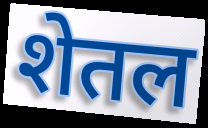
शेतल